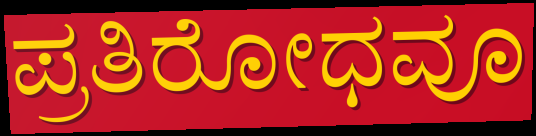
ಪ್ರತಿರೋಧವೂ